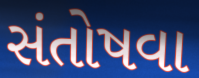
સંતોષવા